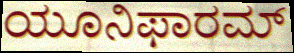
ಯೂನಿಫಾರಮ್